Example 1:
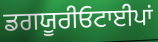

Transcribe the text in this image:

ਡਗਯੂਰੀਓਟਾਈਪਾਂ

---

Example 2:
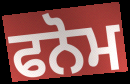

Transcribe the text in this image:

ਫਨੋਮ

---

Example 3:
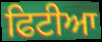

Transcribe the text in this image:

ਫਿਟੀਆ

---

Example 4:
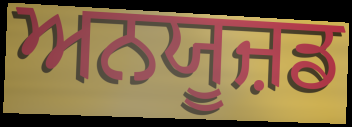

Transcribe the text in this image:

ਅਨਯੂਜ਼ਡ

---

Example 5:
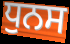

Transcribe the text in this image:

ਧੁਨਸ